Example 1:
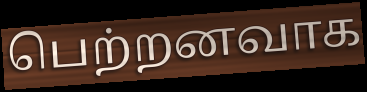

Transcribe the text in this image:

பெற்றனவாக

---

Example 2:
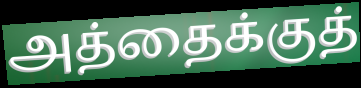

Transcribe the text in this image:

அத்தைக்குத்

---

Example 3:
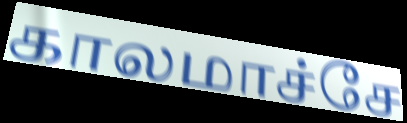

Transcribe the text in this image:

காலமாச்சே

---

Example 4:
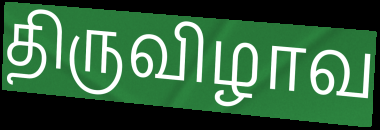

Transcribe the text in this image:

திருவிழாவ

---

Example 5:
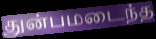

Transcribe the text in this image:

துன்பமடைந்த